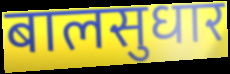
बालसुधार